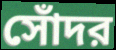
সোঁদর